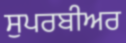
ਸੁਪਰਬੀਅਰ